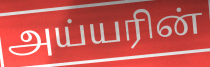
அய்யரின்